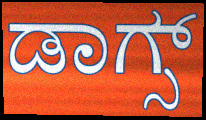
ಡಾಗ್ಸ್